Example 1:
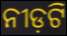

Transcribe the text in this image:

ନୀଡ଼ଟି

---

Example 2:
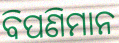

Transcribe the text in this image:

ବିପଣିମାନ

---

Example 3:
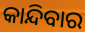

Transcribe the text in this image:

କାନ୍ଦିବାର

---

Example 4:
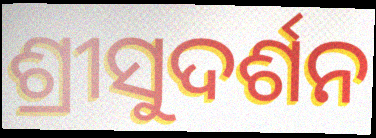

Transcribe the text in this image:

ଶ୍ରୀସୁଦର୍ଶନ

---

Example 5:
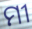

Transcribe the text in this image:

ମୀ